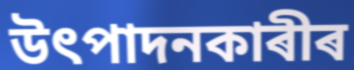
উৎপাদনকাৰীৰ